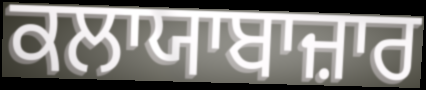
ਕਲਾਯਾਬਾਜ਼ਾਰ